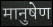
मानुषेण